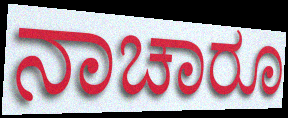
ನಾಚಾರೂ